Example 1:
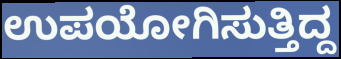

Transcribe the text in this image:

ಉಪಯೋಗಿಸುತ್ತಿದ್ದ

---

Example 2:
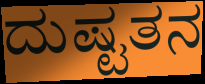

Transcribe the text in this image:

ದುಷ್ಟತನ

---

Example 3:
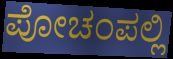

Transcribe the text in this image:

ಪೋಚಂಪಲ್ಲಿ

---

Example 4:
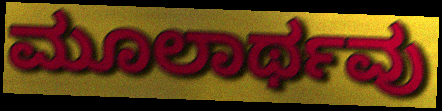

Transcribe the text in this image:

ಮೂಲಾರ್ಥವು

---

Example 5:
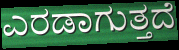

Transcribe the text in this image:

ಎರಡಾಗುತ್ತದೆ